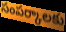
సంపర్కాలకు